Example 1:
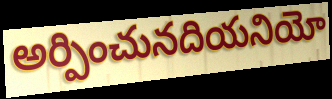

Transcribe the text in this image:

అర్పించునదియనియో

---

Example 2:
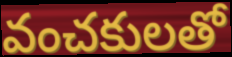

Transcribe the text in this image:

వంచకులతో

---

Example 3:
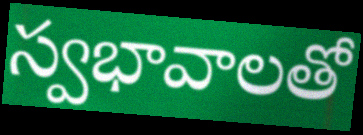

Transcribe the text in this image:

స్వభావాలతో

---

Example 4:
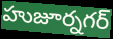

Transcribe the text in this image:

హుజూర్నగర్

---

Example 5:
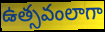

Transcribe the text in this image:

ఉత్సవంలాగా